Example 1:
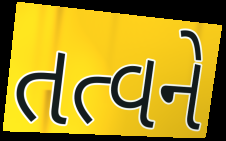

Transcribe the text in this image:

તત્વને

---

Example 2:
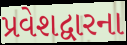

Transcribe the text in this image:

પ્રવેશદ્વારના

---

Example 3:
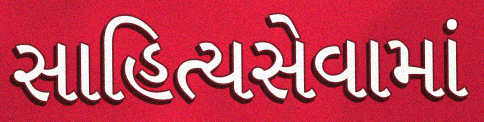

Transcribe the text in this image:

સાહિત્યસેવામાં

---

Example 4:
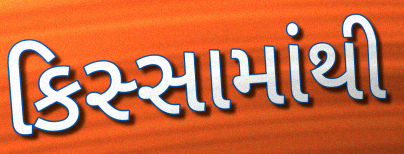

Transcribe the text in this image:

કિસ્સામાંથી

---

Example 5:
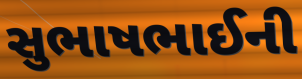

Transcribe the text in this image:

સુભાષભાઈની